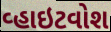
વ્હાઇટવોશ